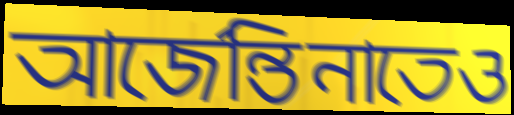
আর্জেন্তিনাতেও